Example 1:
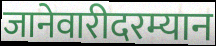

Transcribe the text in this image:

जानेवारीदरम्यान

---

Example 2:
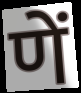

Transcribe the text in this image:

णें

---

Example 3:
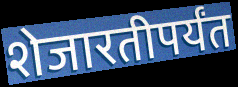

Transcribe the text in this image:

शेजारतीपर्यंत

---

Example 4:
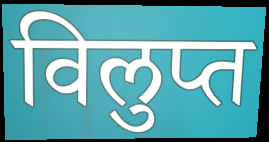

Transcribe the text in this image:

विलुप्त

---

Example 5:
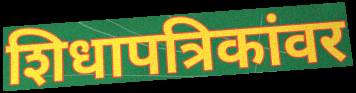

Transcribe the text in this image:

शिधापत्रिकांवर